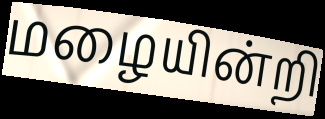
மழையின்றி